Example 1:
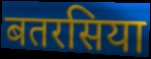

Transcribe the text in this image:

बतरसिया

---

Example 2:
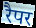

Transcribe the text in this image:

रैपर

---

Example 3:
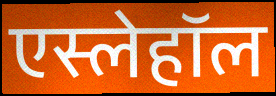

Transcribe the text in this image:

एस्लेहॉल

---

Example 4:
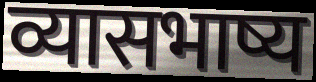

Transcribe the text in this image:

व्यासभाष्य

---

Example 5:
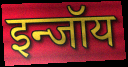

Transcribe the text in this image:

इन्जॉय